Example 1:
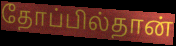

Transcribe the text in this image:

தோப்பில்தான்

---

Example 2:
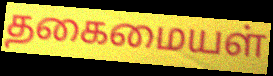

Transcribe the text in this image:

தகைமையள்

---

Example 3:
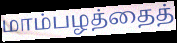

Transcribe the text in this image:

மாம்பழத்தைத்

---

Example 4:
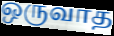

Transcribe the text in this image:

ஒருவாத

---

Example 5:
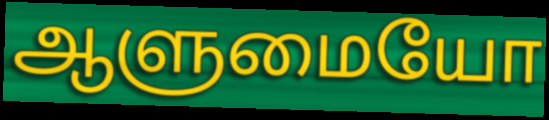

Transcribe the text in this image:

ஆளுமையோ